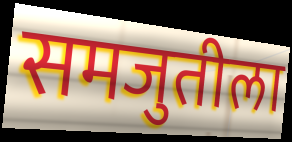
समजुतीला